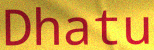
Dhatu